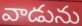
వాడును